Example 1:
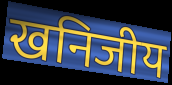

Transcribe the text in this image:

खनिजीय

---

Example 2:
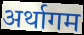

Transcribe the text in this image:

अर्थागम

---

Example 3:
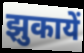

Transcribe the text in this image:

झुकायें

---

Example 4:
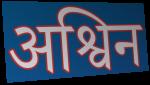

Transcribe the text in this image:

अश्विन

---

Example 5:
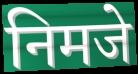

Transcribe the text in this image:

निमजे